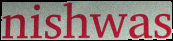
nishwas